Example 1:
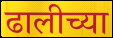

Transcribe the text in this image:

ढालीच्या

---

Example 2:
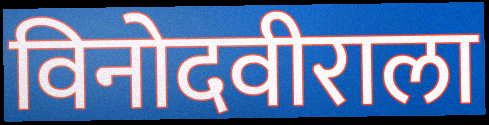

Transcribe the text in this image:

विनोदवीराला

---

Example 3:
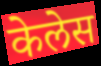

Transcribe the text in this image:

केलेस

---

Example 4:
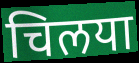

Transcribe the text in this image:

चिलया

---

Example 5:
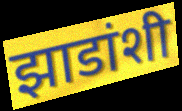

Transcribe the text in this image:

झाडांशी